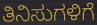
ತಿನಿಸುಗಳಿಗೆ